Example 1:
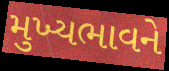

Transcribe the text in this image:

મુખ્યભાવને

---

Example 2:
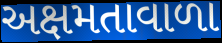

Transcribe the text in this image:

અક્ષમતાવાળા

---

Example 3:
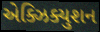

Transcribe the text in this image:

એક્ઝિક્યુશન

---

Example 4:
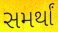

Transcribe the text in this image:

સમર્થાં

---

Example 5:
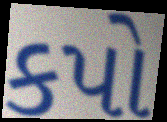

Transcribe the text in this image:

કપો